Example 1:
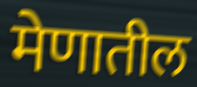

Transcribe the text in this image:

मेणातील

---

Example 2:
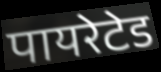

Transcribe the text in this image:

पायरेटेड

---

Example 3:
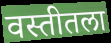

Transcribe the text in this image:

वस्तीतला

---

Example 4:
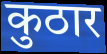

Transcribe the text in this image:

कुठार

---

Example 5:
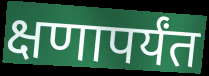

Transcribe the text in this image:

क्षणापर्यंत